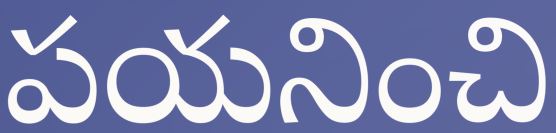
పయనించి